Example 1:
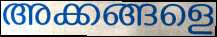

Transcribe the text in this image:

അക്കങ്ങളെ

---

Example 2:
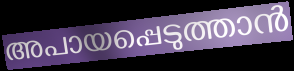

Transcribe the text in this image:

അപായപ്പെടുത്താൻ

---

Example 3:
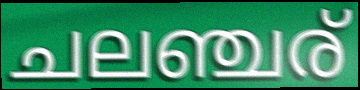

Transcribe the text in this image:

ചലഞ്ചര്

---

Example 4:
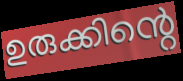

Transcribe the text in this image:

ഉരുക്കിന്റെ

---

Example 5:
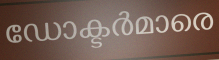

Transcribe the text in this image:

ഡോക്ടർമാരെ